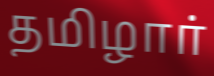
தமிழார்